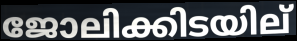
ജോലിക്കിടയില്